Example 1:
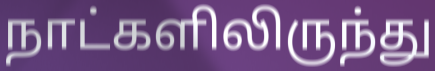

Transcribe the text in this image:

நாட்களிலிருந்து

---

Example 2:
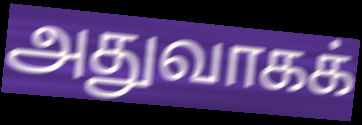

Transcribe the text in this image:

அதுவாகக்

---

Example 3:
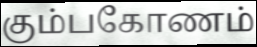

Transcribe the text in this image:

கும்பகோணம்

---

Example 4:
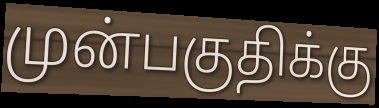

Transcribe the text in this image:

முன்பகுதிக்கு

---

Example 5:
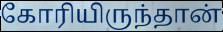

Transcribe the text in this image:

கோரியிருந்தான்